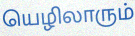
யெழிலாரும்